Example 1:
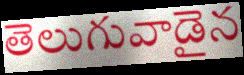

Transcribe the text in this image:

తెలుగువాడైన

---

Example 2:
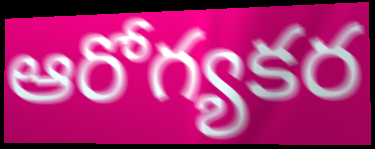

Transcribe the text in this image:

ఆరోగ్యకర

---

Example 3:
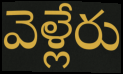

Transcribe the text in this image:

వెళ్లేరు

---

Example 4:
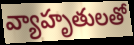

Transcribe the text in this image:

వ్యాహృతులతో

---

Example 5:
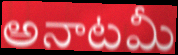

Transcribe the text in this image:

అనాటమీ